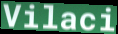
Vilaci